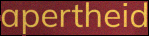
apertheid